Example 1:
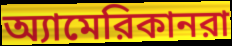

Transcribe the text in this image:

অ্যামেরিকানরা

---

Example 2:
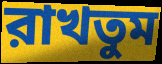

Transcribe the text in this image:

রাখতুম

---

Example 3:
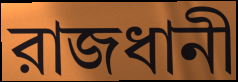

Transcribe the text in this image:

রাজধানী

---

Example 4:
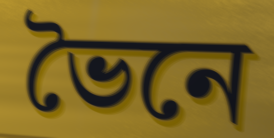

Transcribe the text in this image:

ভৈনে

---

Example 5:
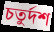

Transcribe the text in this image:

চতুর্দশ